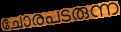
ചോരപടരുന്ന